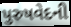
પુરુષવેદની